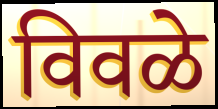
विवळे